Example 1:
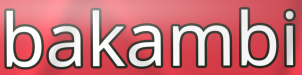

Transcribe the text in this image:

bakambi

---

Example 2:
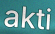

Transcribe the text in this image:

akti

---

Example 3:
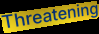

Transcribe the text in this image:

Threatening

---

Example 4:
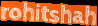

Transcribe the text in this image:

rohitshah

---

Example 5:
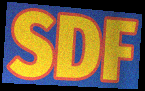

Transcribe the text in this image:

SDF